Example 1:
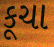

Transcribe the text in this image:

કૂચા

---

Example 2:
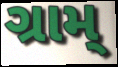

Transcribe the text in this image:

ગ્રામ્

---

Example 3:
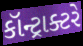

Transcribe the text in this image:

કૉન્ટ્રાક્ટરે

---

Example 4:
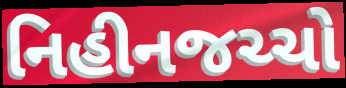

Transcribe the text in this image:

નિહીનજચ્ચો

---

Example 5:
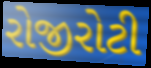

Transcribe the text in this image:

રોજીરોટી